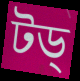
টড্